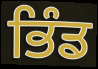
ਭਿੰਡ